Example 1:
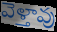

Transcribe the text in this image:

వెళ్తావు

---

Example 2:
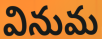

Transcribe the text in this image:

వినుమ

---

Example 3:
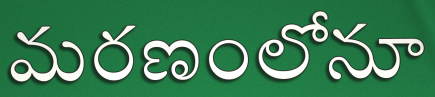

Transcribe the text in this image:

మరణంలోనూ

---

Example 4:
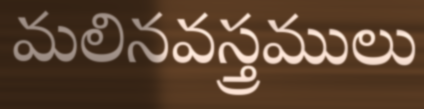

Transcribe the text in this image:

మలినవస్త్రములు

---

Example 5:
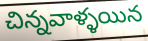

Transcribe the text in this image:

చిన్నవాళ్ళయిన